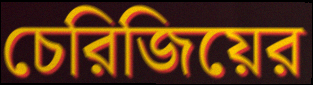
চেরিজিয়ের